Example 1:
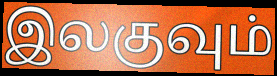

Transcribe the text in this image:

இலகுவும்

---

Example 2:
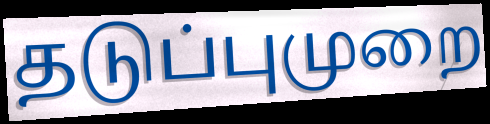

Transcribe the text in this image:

தடுப்புமுறை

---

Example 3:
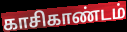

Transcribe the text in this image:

காசிகாண்டம்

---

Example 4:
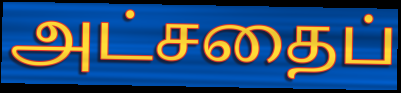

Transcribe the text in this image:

அட்சதைப்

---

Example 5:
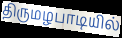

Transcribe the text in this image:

திருமழபாடியில்